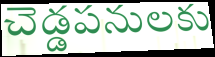
చెడ్డపనులకు